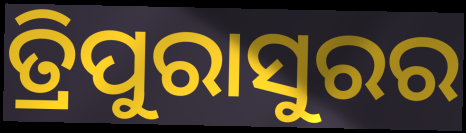
ତ୍ରିପୁରାସୁରର